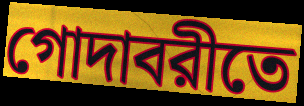
গোদাবরীতে